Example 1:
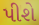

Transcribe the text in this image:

પીશે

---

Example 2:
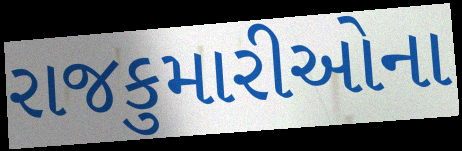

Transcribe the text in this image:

રાજકુમારીઓના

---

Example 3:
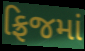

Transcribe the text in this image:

ફ્રિજમાં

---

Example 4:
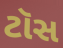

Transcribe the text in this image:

ટૉસ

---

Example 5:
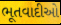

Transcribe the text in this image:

ભૂતવાદીઓ